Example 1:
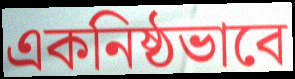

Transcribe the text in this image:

একনিষ্ঠভাবে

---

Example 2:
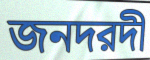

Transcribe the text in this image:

জনদরদী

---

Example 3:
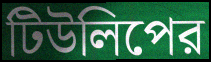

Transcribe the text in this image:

টিউলিপের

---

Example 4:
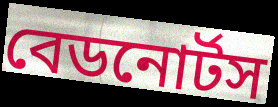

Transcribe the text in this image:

বেডনোর্টস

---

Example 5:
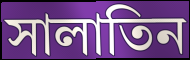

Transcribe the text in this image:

সালাতিন